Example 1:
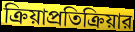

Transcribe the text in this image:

ক্রিয়াপ্রতিক্রিয়ার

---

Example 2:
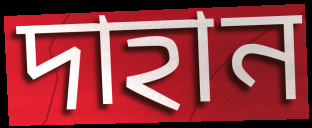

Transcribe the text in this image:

দাহান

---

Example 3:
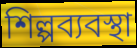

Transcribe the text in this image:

শিল্পব্যবস্থা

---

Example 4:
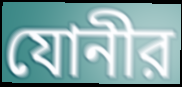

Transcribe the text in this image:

যোনীর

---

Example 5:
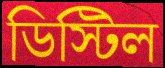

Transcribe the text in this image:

ডিস্টিল